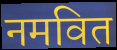
नमवित